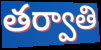
తర్వాతి